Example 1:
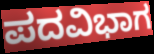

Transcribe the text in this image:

ಪದವಿಭಾಗ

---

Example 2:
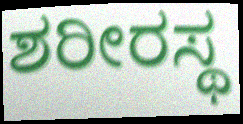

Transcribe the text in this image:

ಶರೀರಸ್ಥ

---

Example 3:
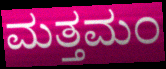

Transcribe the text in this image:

ಮತ್ತಮಂ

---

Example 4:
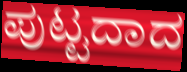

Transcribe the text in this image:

ಪುಟ್ಟದಾದ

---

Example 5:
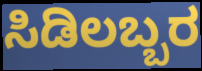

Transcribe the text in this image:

ಸಿಡಿಲಬ್ಬರ